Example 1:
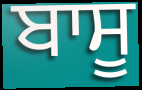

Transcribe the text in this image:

ਬਾਸੂ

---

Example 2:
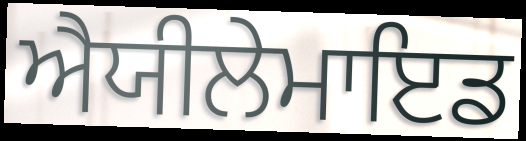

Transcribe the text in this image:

ਐਯੀਲੇਮਾਇਡ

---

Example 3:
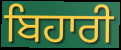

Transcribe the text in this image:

ਬਿਹਾਰੀ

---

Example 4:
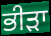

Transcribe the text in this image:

ਭੀੜਾ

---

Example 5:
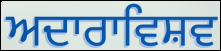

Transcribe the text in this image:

ਅਦਾਰਾਵਿਸ਼ਵ